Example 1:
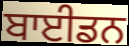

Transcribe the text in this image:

ਬਾਈਡਨ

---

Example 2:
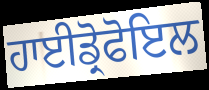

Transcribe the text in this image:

ਹਾਈਡ੍ਰੋਫੋਇਲ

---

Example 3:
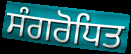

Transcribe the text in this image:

ਸੰਗਰੋਧਿਤ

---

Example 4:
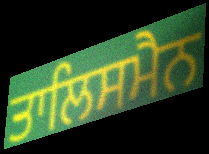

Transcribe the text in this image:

ਤਾਲਿਸਮੈਨ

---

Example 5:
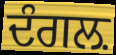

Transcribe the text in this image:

ਦੰਗਲ਼